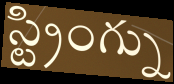
స్ట్రింగ్ను